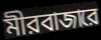
মীরবাজারে